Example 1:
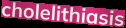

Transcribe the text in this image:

cholelithiasis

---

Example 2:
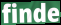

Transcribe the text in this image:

finde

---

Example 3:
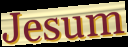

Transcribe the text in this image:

Jesum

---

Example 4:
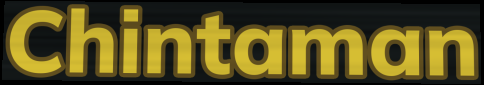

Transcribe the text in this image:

Chintaman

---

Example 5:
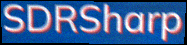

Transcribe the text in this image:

SDRSharp